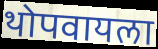
थोपवायला